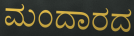
ಮಂದಾರದ